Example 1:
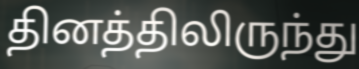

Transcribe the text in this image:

தினத்திலிருந்து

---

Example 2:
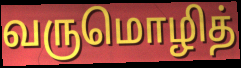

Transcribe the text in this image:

வருமொழித்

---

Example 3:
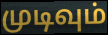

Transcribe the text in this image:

முடிவும்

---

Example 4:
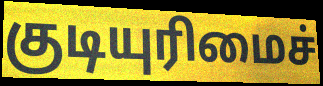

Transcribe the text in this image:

குடியுரிமைச்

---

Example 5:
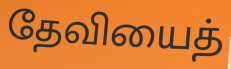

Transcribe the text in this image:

தேவியைத்